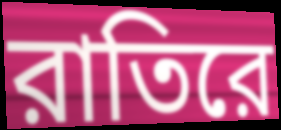
রাতিরে